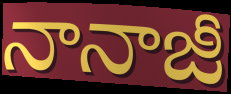
నానాజీ